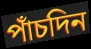
পাঁচদিন